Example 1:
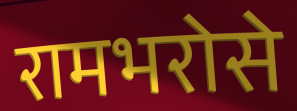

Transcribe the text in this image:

रामभरोसे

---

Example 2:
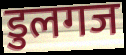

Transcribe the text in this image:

डुलगज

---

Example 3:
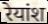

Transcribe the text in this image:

रेयांश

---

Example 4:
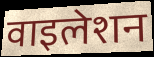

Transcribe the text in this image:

वाइलेशन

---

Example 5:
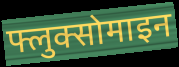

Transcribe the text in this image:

फ्लुक्सोमाइन